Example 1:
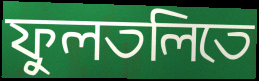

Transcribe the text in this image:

ফুলতলিতে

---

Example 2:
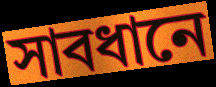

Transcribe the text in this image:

সাবধানে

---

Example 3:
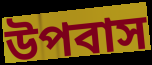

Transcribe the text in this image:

উপবাস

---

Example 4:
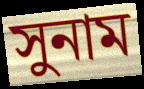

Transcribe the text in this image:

সুনাম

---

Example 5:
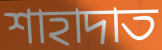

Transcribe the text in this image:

শাহাদাত